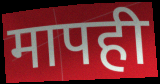
मापही